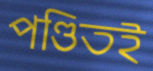
পণ্ডিতই